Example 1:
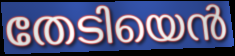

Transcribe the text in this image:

തേടിയെൻ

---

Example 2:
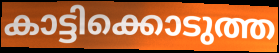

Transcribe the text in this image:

കാട്ടിക്കൊടുത്ത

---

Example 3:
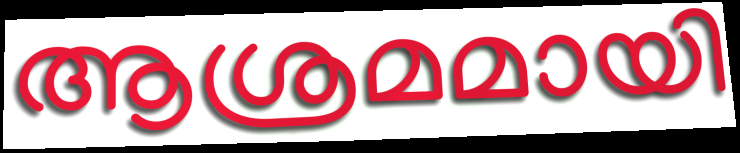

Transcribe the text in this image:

ആശ്രമമായി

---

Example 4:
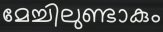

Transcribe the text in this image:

മേച്ചിലുണ്ടാകും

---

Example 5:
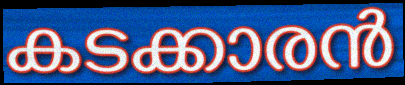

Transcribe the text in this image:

കടക്കാരൻ